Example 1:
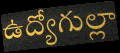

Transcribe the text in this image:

ఉద్యోగుల్లా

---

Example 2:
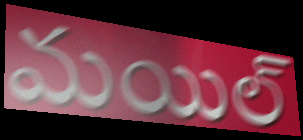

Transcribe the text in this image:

మయిల్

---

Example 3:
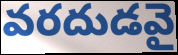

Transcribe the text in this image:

వరదుడవై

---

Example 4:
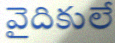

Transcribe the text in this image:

వైదికులే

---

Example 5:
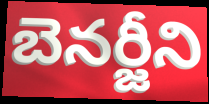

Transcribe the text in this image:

బెనర్జీని